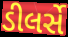
ડીલર્સે